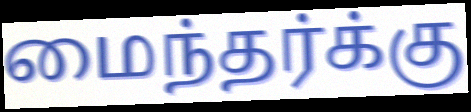
மைந்தர்க்கு